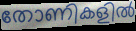
തോണികളിൽ